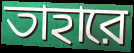
তাহারে